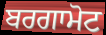
ਬਰਗਾਮੋਟ